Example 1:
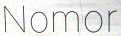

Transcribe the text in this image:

Nomor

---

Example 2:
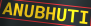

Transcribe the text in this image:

ANUBHUTI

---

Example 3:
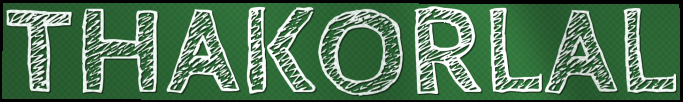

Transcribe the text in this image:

THAKORLAL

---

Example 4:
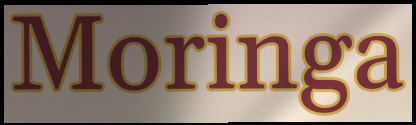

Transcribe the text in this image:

Moringa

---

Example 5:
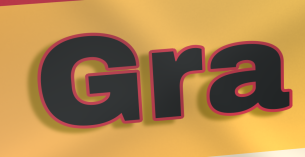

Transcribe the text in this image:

Gra